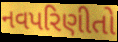
નવપરિણીતો